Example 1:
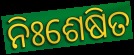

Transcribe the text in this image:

ନିଃଶେଷିତ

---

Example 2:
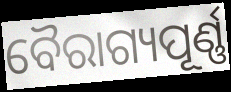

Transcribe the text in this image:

ବୈରାଗ୍ୟପୂର୍ଣ୍ଣ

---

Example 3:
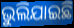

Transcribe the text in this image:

ଭୁଲିଯାଇଛି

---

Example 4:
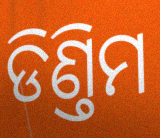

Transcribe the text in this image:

ଡିଣ୍ତିମ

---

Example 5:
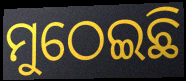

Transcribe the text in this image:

ମୁଠେଇଛି